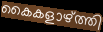
കൈകളാഴ്ത്തി